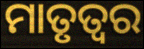
ମାତୃତ୍ୱର